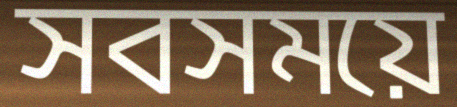
সবসময়ে